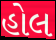
હોલ